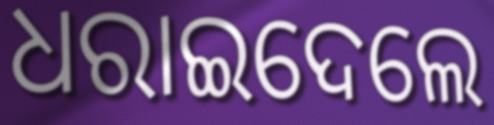
ଧରାଇଦେଲେ